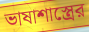
ভাষাশাস্ত্রের